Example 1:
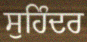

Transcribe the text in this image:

ਸੁਹਿੰਦਰ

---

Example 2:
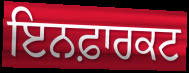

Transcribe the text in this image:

ਇਨਫ਼ਾਰਕਟ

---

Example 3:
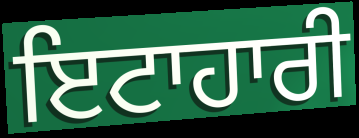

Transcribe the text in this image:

ਇਟਾਹਾਰੀ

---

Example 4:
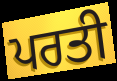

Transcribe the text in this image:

ਪਰਤੀ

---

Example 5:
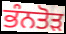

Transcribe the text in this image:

ਭੰਨਤੋੜ